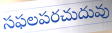
సఫలపరచుదువు